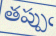
తప్పుఁ